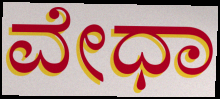
ವೇಧಾ